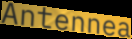
Antennea